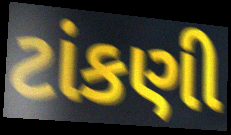
ટાંકણી